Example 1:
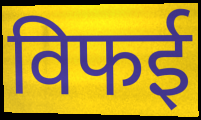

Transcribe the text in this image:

विफई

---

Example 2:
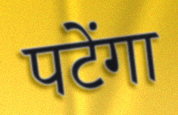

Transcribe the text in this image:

पटेंगा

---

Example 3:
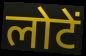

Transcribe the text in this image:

लोटें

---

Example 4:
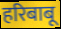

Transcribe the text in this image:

हरिबाबू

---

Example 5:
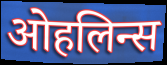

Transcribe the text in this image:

ओहलिन्स